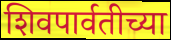
शिवपार्वतीच्या